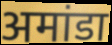
अमांडा